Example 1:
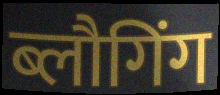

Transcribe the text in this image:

ब्लौगिंग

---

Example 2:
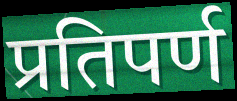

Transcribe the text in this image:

प्रतिपर्ण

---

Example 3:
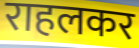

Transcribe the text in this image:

राहलकर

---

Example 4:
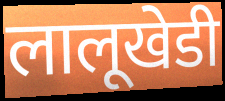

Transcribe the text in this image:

लालूखेडी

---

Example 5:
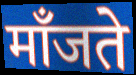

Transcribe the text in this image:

माँजते